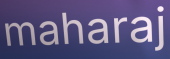
maharaj